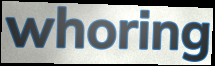
whoring